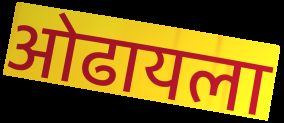
ओढायला